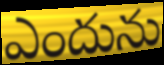
ఎందును